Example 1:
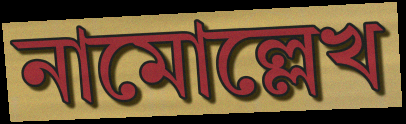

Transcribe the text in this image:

নামোল্লেখ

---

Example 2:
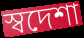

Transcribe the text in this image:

স্বদেশা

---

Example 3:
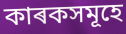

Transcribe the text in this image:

কাৰকসমূহে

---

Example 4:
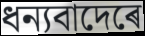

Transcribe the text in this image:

ধন্যবাদেৰে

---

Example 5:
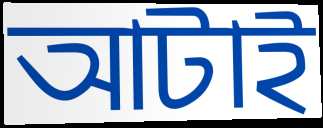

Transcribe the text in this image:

আটাই